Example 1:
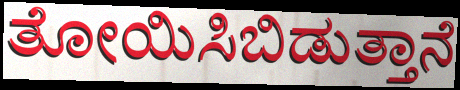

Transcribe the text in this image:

ತೋಯಿಸಿಬಿಡುತ್ತಾನೆ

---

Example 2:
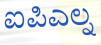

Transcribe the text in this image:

ಐಪಿಎಲ್ನ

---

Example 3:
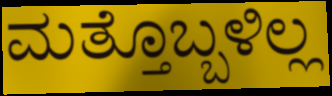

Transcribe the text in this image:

ಮತ್ತೊಬ್ಬಳಿಲ್ಲ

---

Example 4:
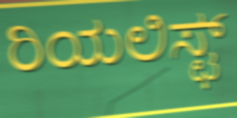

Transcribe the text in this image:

ರಿಯಲಿಸ್ಟ್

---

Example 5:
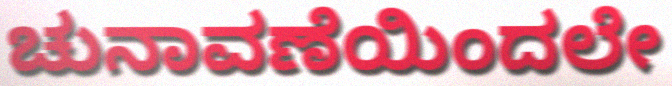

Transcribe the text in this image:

ಚುನಾವಣೆಯಿಂದಲೇ